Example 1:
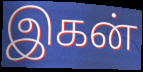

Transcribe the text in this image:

இகன்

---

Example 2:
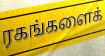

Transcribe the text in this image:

ரகங்களைக்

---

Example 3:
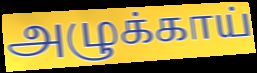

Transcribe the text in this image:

அழுக்காய்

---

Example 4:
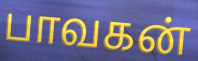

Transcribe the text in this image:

பாவகன்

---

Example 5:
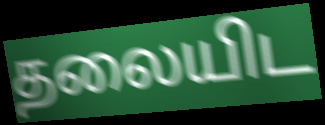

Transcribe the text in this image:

தலையிட